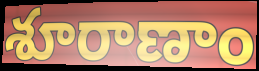
శూరాణాం